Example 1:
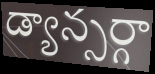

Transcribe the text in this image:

డ్యాన్సర్గా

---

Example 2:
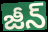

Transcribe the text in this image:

జీన్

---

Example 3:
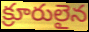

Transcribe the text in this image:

క్రూరులైన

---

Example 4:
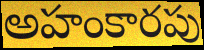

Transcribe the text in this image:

అహంకారపు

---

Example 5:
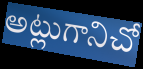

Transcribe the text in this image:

అట్లుగానిచో